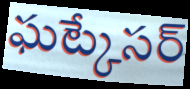
ఘట్కేసర్